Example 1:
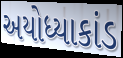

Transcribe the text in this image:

અયોધ્યાકાંડ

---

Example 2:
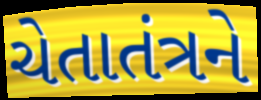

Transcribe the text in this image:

ચેતાતંત્રને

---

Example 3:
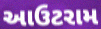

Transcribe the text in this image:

આઉટરામ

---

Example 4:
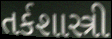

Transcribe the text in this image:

તર્કશાસ્ત્રી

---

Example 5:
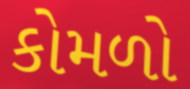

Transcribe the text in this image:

કોમળો